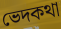
ভেদকথা